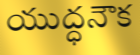
యుద్ధనౌక